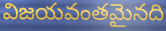
విజయవంతమైనది